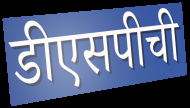
डीएसपीची